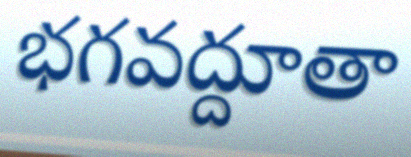
భగవద్దూతా